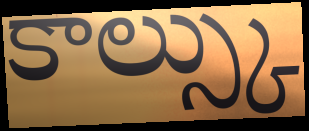
కాల్స్కు